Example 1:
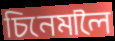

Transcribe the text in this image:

চিনেমালৈ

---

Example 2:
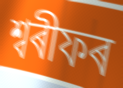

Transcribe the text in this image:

শ্বৰীফৰ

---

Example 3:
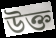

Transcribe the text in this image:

উক্ত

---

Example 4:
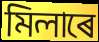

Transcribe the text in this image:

মিলাৰে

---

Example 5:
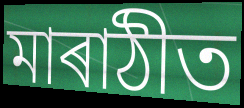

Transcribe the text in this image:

মাৰাঠীত